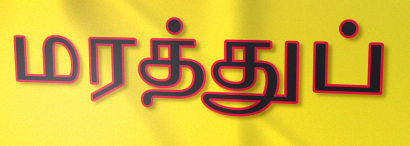
மரத்துப்